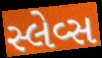
સ્લેવ્સ